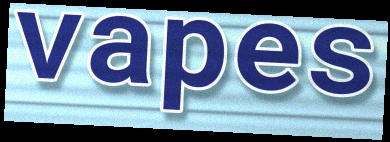
vapes